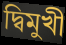
দ্বিমুখী